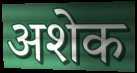
अशेक